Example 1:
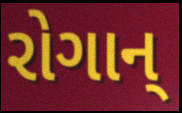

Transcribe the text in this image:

રોગાન્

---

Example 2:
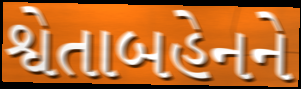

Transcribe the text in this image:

શ્વેતાબહેનને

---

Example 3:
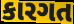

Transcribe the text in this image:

કારગત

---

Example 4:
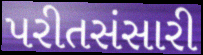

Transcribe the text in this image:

પરીતસંસારી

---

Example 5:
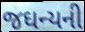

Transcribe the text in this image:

જઘન્યની